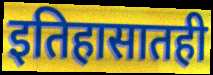
इतिहासातही